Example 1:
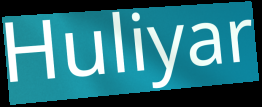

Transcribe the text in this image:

Huliyar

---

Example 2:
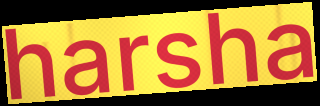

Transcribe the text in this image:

harsha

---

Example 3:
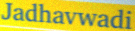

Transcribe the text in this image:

Jadhavwadi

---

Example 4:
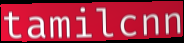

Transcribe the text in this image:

tamilcnn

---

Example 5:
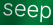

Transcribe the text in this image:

seep